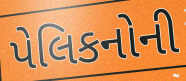
પેલિકનોની